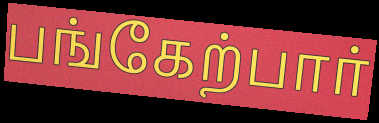
பங்கேற்பார்